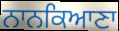
ਨਾਨਕਿਆਣਾ